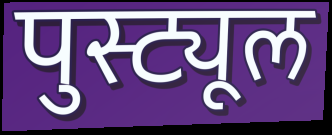
पुस्ट्यूल